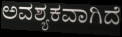
ಅವಶ್ಯಕವಾಗಿದೆ